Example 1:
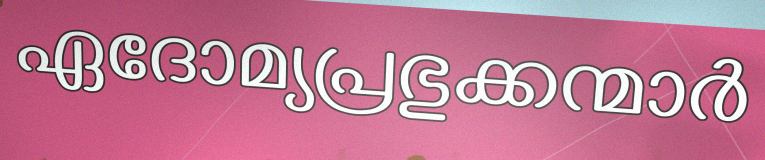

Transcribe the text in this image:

ഏദോമ്യപ്രഭുക്കന്മാർ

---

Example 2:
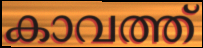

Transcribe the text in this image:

കാവത്ത്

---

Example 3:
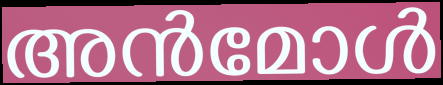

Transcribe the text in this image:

അൻമോൾ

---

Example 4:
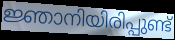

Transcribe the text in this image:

ജ്ഞാനിയിരിപ്പുണ്ട്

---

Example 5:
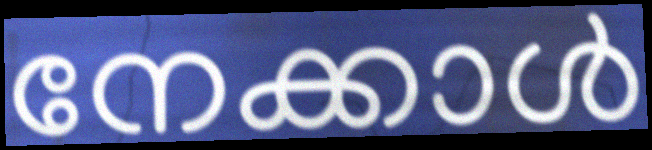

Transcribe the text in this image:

നേക്കാൾ